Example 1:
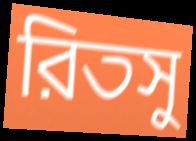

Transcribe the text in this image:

রিতসু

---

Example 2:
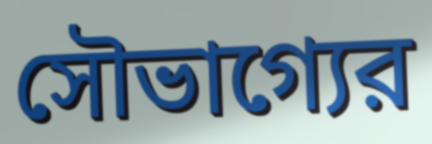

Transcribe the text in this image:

সৌভাগ্যের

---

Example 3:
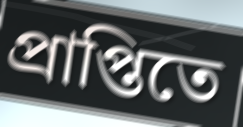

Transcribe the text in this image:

প্রাপ্তিতে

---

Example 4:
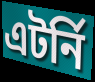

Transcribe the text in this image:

এটর্নি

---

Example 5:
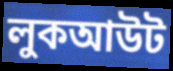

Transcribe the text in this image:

লুকআউট